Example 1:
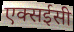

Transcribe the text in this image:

एक्सईसी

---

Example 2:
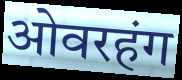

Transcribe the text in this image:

ओवरहंग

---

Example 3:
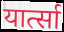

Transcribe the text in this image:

यार्त्सा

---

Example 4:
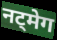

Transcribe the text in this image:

नट्मेग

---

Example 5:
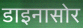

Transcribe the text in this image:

डाइनासोर